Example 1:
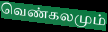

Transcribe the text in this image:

வெண்கலமும்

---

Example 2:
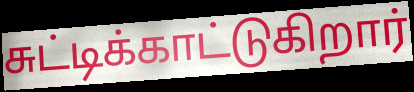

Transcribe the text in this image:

சுட்டிக்காட்டுகிறார்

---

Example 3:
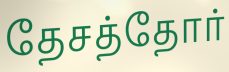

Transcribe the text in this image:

தேசத்தோர்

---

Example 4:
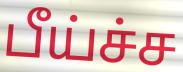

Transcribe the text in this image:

பீய்ச்ச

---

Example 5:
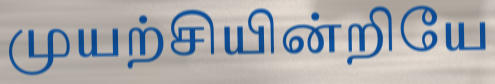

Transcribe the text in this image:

முயற்சியின்றியே